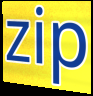
zip